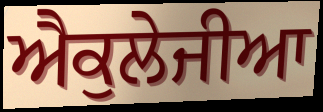
ਐਕੁਲੇਜੀਆ